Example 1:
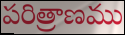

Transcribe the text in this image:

పరిత్రాణము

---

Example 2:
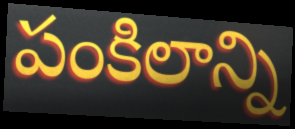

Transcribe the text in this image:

పంకిలాన్ని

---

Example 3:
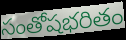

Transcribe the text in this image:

సంతోషభరితం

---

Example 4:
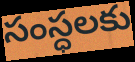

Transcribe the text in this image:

సంస్ధలకు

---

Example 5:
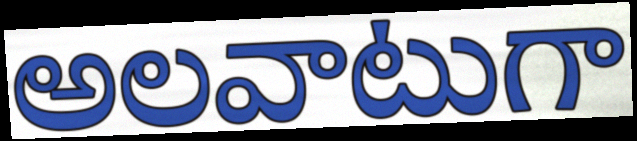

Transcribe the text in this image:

అలవాటుగా